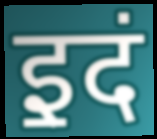
इ॒दं